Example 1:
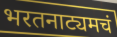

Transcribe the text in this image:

भरतनाट्यमचं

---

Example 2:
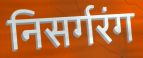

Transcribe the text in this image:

निसर्गरंग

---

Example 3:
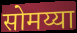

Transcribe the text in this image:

सोमय्या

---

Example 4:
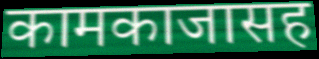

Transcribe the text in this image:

कामकाजासह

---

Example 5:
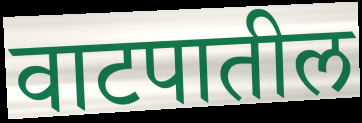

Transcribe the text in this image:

वाटपातील